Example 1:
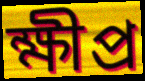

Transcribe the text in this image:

ক্ষীপ্ৰ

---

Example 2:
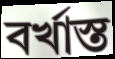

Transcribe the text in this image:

বৰ্খাস্ত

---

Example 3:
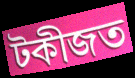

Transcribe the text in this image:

টকীজত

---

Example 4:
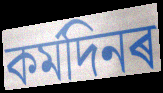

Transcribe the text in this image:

কৰ্মদিনৰ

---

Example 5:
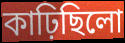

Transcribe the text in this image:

কাঢ়িছিলো